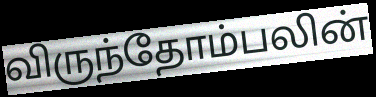
விருந்தோம்பலின்